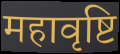
महावृष्टि